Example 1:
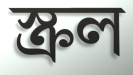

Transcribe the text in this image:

স্ক্রল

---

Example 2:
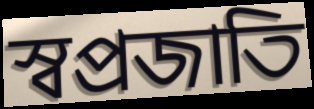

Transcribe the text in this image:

স্বপ্রজাতি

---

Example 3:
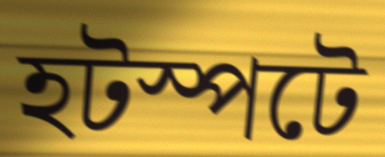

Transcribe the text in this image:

হটস্পটে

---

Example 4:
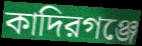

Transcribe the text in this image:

কাদিরগঞ্জে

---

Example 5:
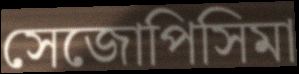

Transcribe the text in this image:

সেজোপিসিমা